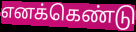
எனக்கெண்டு